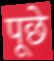
पूछे